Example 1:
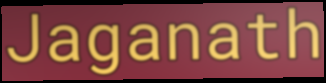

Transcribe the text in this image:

Jaganath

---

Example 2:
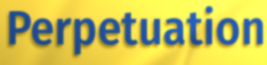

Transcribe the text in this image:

Perpetuation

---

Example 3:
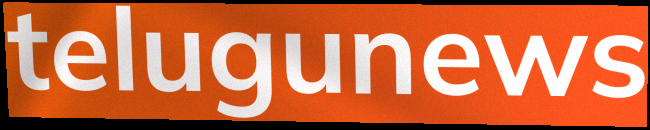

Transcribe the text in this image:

telugunews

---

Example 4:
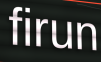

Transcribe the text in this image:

firun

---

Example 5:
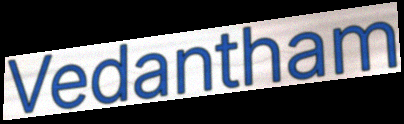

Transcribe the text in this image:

Vedantham